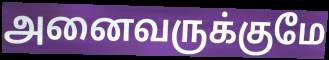
அனைவருக்குமே